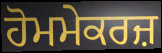
ਹੋਮਮੇਕਰਜ਼